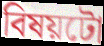
বিষয়টো